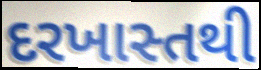
દરખાસ્તથી